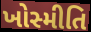
ખોસ્મીતિ